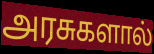
அரசுகளால்